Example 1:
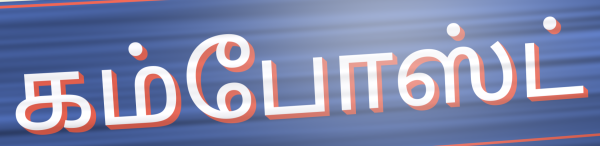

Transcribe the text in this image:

கம்போஸ்ட்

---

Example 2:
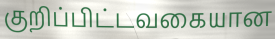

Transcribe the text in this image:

குறிப்பிட்டவகையான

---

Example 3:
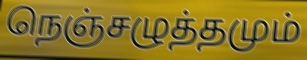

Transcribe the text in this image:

நெஞ்சழுத்தமும்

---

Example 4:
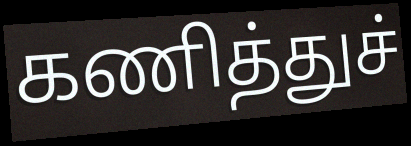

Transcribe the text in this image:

கணித்துச்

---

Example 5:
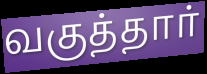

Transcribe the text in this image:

வகுத்தார்